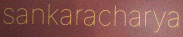
sankaracharya